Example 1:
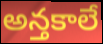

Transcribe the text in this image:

అన్తకాలే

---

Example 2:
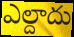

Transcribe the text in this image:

ఎల్దాదు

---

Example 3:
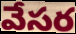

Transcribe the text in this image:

వేసర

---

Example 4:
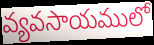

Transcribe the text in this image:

వ్యవసాయములో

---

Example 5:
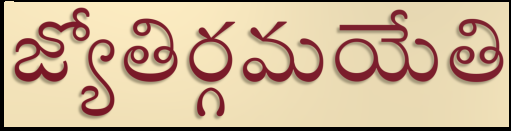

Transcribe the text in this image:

జ్యోతిర్గమయేతి